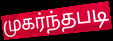
முகர்ந்தபடி